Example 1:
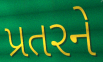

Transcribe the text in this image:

પ્રતરને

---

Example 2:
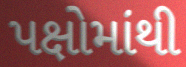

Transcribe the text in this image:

પક્ષોમાંથી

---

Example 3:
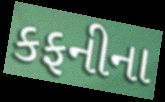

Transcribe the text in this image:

કફનીના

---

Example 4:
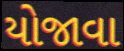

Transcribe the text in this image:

યોજાવા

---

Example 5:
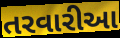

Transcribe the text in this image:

તરવારીઆ